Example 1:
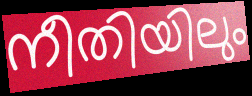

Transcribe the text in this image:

നീതിയിലും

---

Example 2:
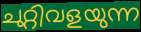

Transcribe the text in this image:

ചുറ്റിവളയുന്ന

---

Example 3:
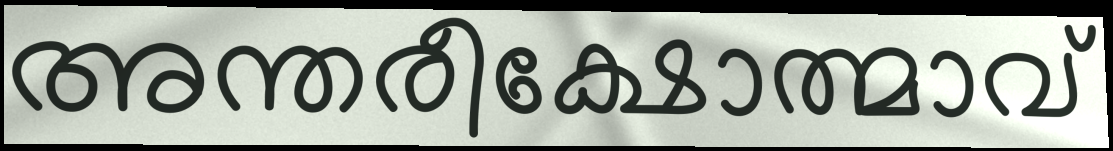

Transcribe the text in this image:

അന്തരീക്ഷോത്മാവ്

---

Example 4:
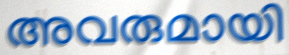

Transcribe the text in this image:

അവരുമായി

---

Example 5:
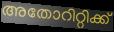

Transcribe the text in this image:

അതോറിറ്റിക്ക്